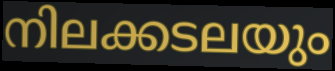
നിലക്കടലയും